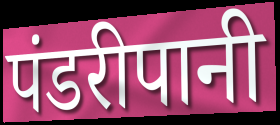
पंडरीपानी